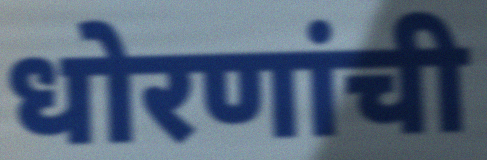
धोरणांची